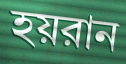
হয়রান